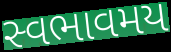
સ્વભાવમય